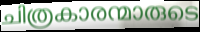
ചിത്രകാരന്മാരുടെ